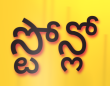
స్టోన్లో